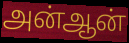
அன்ஆன்